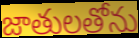
జాతులతోను